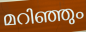
മറിഞ്ഞും